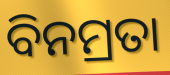
ବିନମ୍ରତା